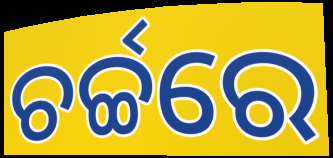
ଚର୍ଚ୍ଚରେ